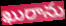
ఖురాను